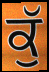
ਕੁੱ